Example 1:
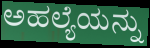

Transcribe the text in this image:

ಅಹಲ್ಯೆಯನ್ನು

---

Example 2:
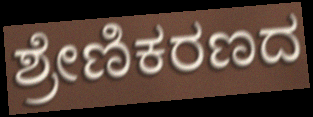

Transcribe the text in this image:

ಶ್ರೇಣಿಕರಣದ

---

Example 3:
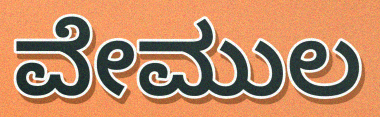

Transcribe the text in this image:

ವೇಮುಲ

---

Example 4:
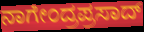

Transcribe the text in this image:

ನಾಗೇಂದ್ರಪ್ರಸಾದ್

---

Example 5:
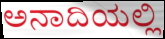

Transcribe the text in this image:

ಅನಾದಿಯಲ್ಲಿ